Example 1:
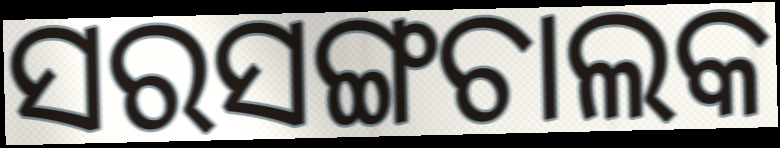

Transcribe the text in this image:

ସରସଙ୍ଗଚାଲକ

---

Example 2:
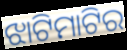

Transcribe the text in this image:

ଝାଟିମାଟିର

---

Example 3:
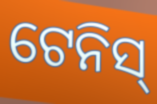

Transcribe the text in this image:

ଟେନିସ୍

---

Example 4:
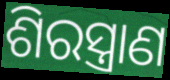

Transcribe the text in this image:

ଶିରସ୍ତ୍ରାଣ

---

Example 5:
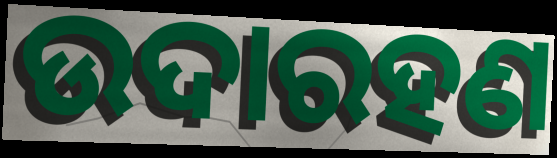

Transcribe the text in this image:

ଉଦାରହଣ